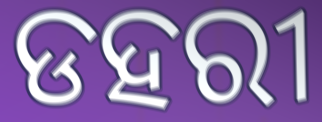
ଡହରୀ